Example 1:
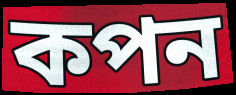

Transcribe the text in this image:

কপন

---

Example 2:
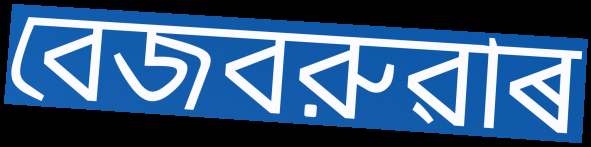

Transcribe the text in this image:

বেজবৰুৱাৰ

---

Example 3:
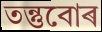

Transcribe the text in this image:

তন্তুবোৰ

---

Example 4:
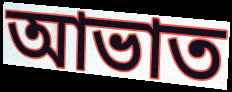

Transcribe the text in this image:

আভাত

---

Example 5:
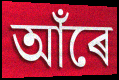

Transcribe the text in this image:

আঁৰে